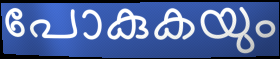
പോകുകയും